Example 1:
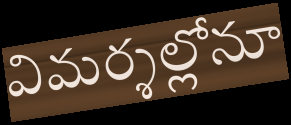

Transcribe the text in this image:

విమర్శల్లోనూ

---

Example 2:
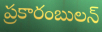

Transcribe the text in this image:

ప్రకారంబులన్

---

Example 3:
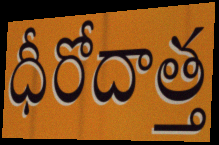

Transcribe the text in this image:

ధీరోదాత్త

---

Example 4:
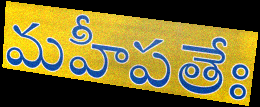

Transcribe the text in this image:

మహీపతేః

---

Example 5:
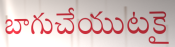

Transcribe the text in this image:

బాగుచేయుటకై